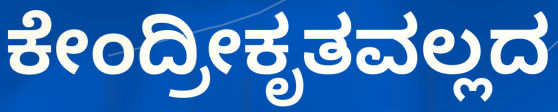
ಕೇಂದ್ರೀಕೃತವಲ್ಲದ